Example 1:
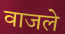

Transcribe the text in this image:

वाजले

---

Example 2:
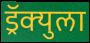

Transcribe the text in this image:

ड्रॅक्युला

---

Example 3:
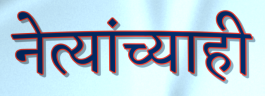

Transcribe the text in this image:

नेत्यांच्याही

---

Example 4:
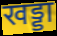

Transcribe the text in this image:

खड्डा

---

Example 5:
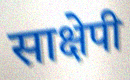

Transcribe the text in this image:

साक्षेपी